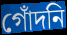
গোঁদনি